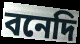
বনেদি